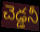
చెడ్డనీ